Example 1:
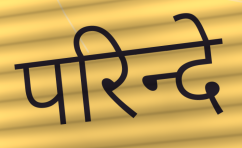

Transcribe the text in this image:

परिन्दे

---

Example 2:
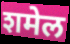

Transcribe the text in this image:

शमेल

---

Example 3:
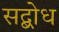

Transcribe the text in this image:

सद्बोध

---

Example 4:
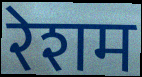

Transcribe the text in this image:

रेशम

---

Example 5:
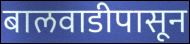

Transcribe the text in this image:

बालवाडीपासून